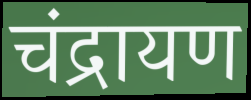
चंद्रायण